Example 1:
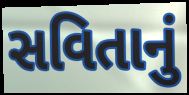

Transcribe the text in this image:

સવિતાનું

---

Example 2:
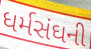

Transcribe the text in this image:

ધર્મસંઘની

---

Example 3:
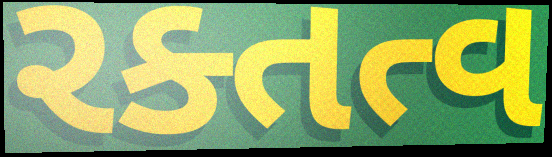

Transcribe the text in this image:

રક્તત્વ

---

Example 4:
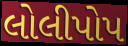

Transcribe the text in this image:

લોલીપોપ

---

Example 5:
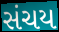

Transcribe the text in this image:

સંચય